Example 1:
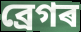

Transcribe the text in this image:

ব্ৰেগৰ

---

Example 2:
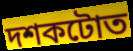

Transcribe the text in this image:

দশকটোত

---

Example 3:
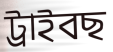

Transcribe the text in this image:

ট্ৰাইবছ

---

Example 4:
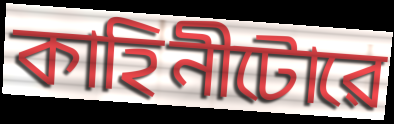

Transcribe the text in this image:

কাহিনীটোৱে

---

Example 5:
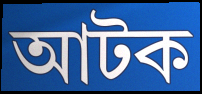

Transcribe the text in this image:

আটক